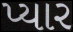
પ્યાર